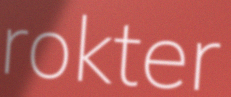
rokter